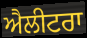
ਐਲੀਟਰਾ